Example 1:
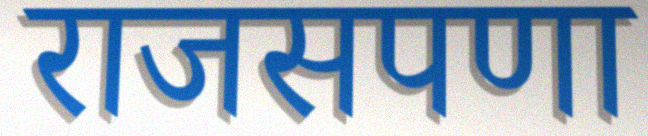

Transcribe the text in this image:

राजसपणा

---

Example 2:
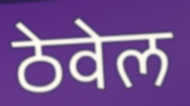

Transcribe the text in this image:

ठेवेल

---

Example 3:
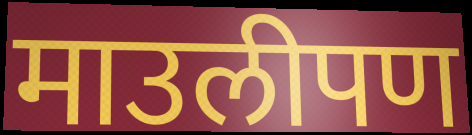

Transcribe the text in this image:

माउलीपण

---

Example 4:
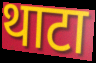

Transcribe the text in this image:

थाटा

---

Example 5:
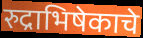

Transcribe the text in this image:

रुद्राभिषेकाचे